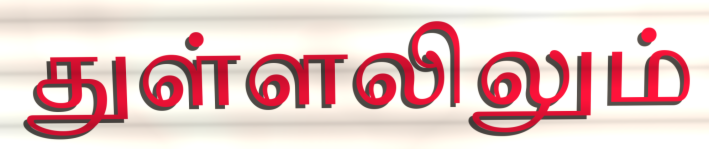
துள்ளலிலும்